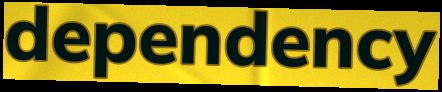
dependency